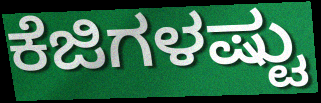
ಕೆಜಿಗಳಷ್ಟು